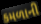
કમળાની